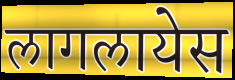
लागलायेस